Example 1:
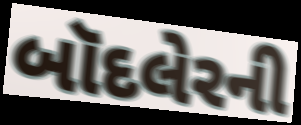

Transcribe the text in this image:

બૉદલેરની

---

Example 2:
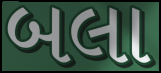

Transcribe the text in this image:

બલા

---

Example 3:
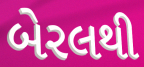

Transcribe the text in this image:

બેરલથી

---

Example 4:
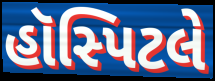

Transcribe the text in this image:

હૉસ્પિટલે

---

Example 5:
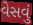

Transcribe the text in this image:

વેસવું